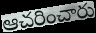
ఆచరించారు